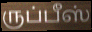
ருப்பீஸ்